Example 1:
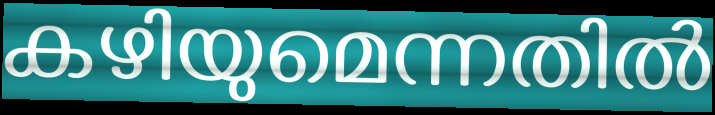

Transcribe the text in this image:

കഴിയുമെന്നതിൽ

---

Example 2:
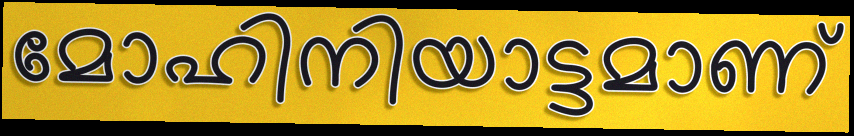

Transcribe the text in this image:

മോഹിനിയാട്ടമാണ്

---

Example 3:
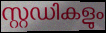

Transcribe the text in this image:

സ്റ്റഡികളും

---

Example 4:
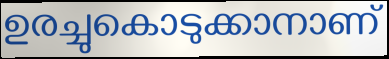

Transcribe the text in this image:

ഉരച്ചുകൊടുക്കാനാണ്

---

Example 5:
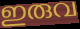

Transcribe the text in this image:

ഇരുവ